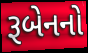
રૂબેનનો